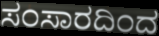
ಸಂಸಾರದಿಂದ